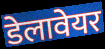
डेलावेयर